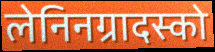
लेनिनग्रादस्को